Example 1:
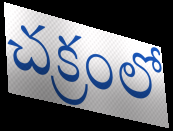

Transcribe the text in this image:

చక్రంలో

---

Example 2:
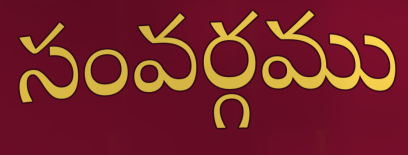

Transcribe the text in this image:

సంవర్గము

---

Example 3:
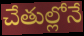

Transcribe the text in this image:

చేతుల్లోనే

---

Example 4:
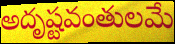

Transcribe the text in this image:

అదృష్టవంతులమే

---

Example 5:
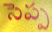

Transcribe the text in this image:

సెప్ప